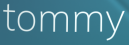
tommy